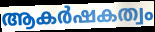
ആകർഷകത്വം